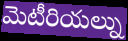
మెటీరియల్ను